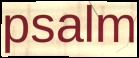
psalm